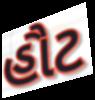
હૌટ